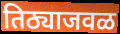
तिठ्याजवळ